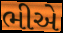
ભીએ